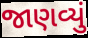
જાણવ્યું